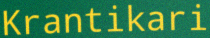
Krantikari